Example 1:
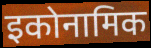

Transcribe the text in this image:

इकोनामिक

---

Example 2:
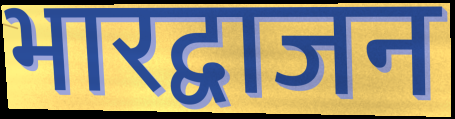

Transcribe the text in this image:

भारद्वाजन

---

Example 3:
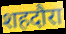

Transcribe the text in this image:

शहदौरा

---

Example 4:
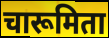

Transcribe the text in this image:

चारूमिता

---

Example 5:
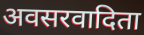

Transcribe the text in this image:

अवसरवादिता